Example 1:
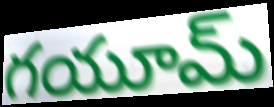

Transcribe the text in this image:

గయూమ్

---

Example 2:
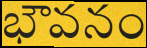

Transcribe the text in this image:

భౌవనం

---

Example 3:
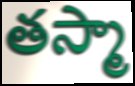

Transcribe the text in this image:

తస్మా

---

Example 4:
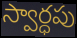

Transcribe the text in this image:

స్వార్ధపు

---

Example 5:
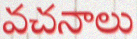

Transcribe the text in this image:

వచనాలు